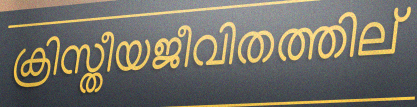
ക്രിസ്തീയജീവിതത്തില്